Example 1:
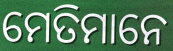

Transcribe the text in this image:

ମେତିମାନେ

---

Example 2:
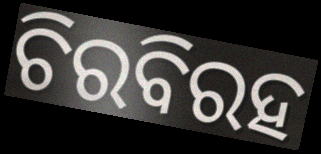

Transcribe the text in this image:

ଚିରବିରହ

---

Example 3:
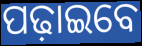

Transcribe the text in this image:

ପଢ଼ାଇବେ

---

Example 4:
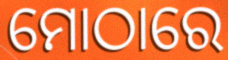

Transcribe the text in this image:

ମୋଠାରେ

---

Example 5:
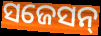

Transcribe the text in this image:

ସଜେସନ୍